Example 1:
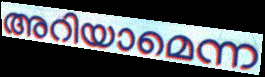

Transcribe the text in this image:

അറിയാമെന്ന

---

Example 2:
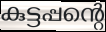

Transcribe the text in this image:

കുട്ടപ്പന്റെ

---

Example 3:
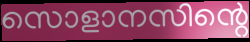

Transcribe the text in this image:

സൊളാനസിന്റെ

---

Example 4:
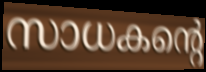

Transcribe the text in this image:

സാധകന്റെ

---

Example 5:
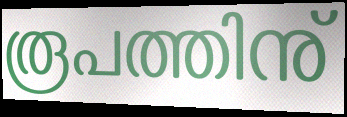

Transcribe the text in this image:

രൂപത്തിനു്